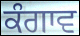
ਕੰਗਾਵ